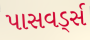
પાસવર્ડ્સ